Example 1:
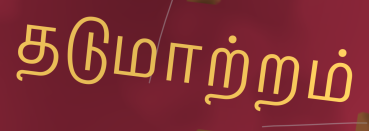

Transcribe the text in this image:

தடுமாற்றம்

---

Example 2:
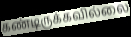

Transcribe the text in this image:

கண்டிருக்கவில்லை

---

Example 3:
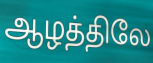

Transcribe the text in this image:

ஆழத்திலே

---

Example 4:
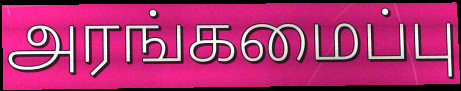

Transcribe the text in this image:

அரங்கமைப்பு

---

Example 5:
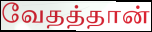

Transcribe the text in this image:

வேதத்தான்